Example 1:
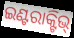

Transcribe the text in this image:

ଇଣ୍ଟରାକ୍ଟିଭ୍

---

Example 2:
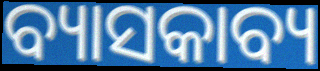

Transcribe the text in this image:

ବ୍ୟାସକାବ୍ୟ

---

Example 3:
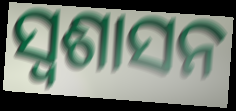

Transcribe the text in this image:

ସ୍ବଶାସନ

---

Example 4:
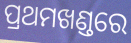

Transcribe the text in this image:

ପ୍ରଥମଖଣ୍ଡରେ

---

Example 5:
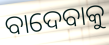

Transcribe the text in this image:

ବାଦେବାକୁ